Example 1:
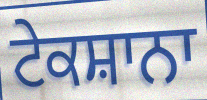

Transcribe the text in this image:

ਟੇਕਸ਼ਾਨਾ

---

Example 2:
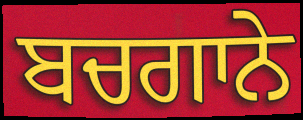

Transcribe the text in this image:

ਬਚਗਾਨੇ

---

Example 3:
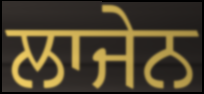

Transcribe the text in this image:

ਲਾਜੇਨ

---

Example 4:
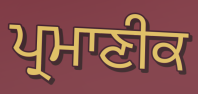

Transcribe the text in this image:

ਪ੍ਰਮਾਣੀਕ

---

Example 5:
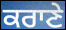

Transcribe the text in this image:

ਕਰਾਣੇ